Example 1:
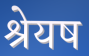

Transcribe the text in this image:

श्रेयष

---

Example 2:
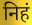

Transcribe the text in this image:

निहं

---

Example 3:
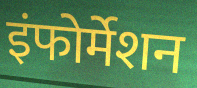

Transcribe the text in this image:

इंफोर्मेशन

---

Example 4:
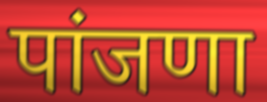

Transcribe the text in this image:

पांजणा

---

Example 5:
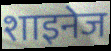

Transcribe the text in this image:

शाइनेज